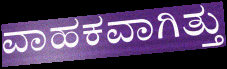
ವಾಹಕವಾಗಿತ್ತು